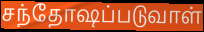
சந்தோஷப்படுவாள்